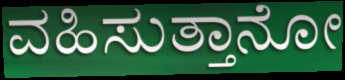
ವಹಿಸುತ್ತಾನೋ